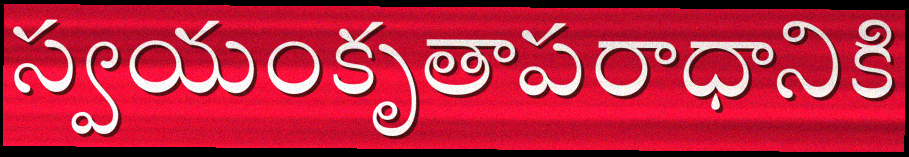
స్వయంకృతాపరాధానికి